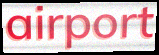
airport